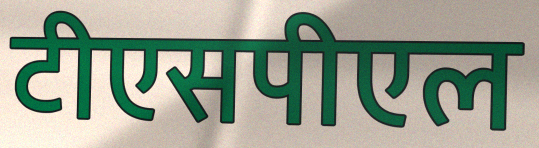
टीएसपीएल